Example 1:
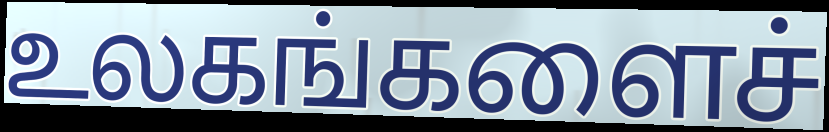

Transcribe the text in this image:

உலகங்களைச்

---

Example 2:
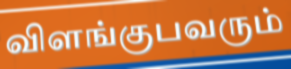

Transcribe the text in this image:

விளங்குபவரும்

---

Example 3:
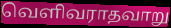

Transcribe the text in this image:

வெளிவராதவாறு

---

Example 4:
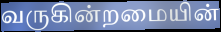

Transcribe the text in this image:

வருகின்றமையின்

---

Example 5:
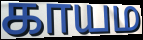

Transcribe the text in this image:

காயம